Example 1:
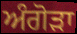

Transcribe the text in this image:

ਅੰਗੋੜਾ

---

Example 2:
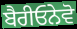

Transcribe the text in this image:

ਬੈਰੀਓਨੇਵੋ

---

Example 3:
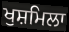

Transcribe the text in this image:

ਖੁਸ਼ਮਿਲਾ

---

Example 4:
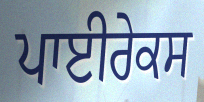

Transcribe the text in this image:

ਪਾਈਰੇਕਸ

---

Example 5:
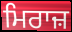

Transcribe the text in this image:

ਮਿਰਾਜ਼